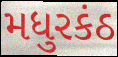
મધુરકંઠ